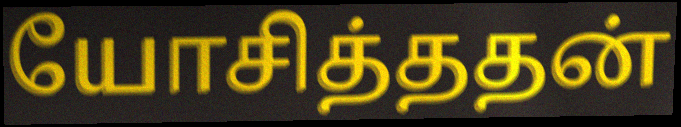
யோசித்ததன்